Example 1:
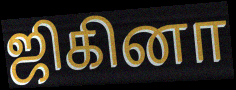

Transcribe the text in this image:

ஜிகினா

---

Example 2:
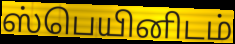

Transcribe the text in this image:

ஸ்பெயினிடம்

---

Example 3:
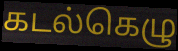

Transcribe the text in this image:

கடல்கெழு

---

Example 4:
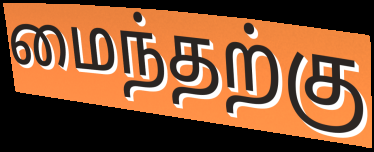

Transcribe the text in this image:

மைந்தற்கு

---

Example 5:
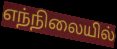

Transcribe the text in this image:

எந்நிலையில்